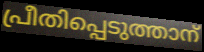
പ്രീതിപ്പെടുത്താന്